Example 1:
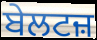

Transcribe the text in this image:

ਬੇਲਟਜ਼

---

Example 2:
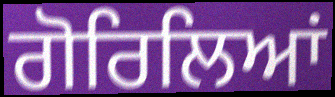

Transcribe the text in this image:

ਗੋਰਿਲਿਆਂ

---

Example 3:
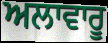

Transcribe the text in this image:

ਅਲਾਵਾਰੂ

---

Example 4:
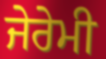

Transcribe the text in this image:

ਜੇਰੇਮੀ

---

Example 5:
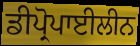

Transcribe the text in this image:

ਡੀਪ੍ਰੋਪਾਈਲੀਨ